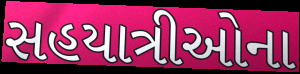
સહયાત્રીઓના